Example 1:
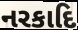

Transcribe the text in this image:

નરકાદિ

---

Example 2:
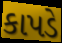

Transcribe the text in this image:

કાપડે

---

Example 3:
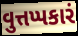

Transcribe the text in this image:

વુત્તપ્પકારં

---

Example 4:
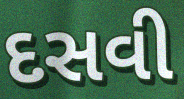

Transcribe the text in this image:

દસવી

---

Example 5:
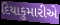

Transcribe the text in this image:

દિયાકુમારીએ